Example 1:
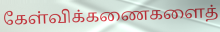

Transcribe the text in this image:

கேள்விக்கணைகளைத்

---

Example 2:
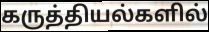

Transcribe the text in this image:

கருத்தியல்களில்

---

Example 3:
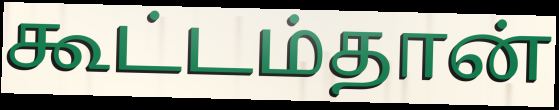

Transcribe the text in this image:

கூட்டம்தான்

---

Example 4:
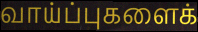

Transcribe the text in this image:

வாய்ப்புகளைக்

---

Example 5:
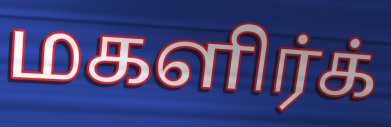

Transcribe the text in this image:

மகளிர்க்